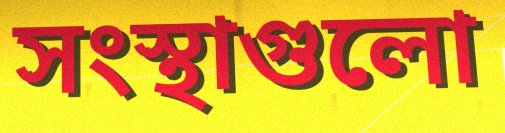
সংস্থাগুলো